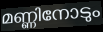
മണ്ണിനോടും